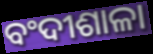
ବଂଦୀଶାଳା